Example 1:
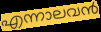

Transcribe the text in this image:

എന്നാലവൻ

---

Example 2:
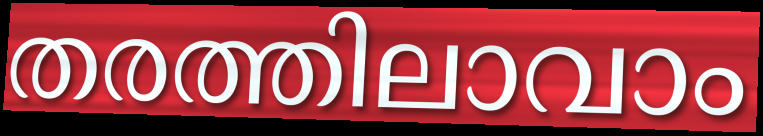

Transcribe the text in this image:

തരത്തിലാവാം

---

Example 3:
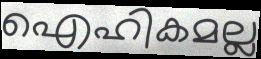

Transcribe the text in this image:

ഐഹികമല്ല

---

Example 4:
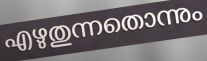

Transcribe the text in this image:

എഴുതുന്നതൊന്നും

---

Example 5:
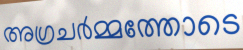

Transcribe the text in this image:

അഗ്രചർമ്മത്തോടെ